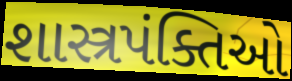
શાસ્ત્રપંક્તિઓ